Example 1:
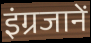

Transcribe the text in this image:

इंग्रजानें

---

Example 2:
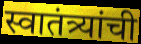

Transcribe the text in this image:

स्वातंत्र्यांची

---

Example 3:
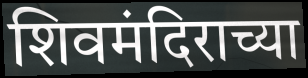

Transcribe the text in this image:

शिवमंदिराच्या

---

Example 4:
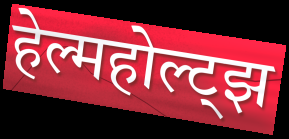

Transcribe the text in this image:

हेल्महोल्ट्झ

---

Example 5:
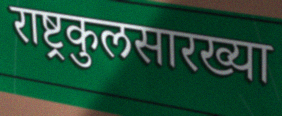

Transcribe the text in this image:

राष्ट्रकुलसारख्या